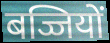
बज्जियों